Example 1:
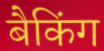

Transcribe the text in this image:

बैकिंग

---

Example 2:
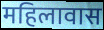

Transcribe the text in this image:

महिलावास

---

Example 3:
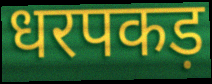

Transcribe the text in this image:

धरपकड़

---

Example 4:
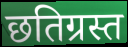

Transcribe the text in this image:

छतिग्रस्त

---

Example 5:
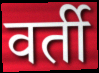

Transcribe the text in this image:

वर्ती